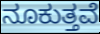
ನೂಕುತ್ತವೆ